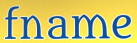
fname